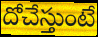
దోచేస్తుంటే